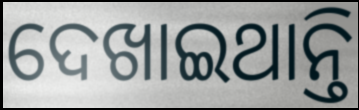
ଦେଖାଇଥାନ୍ତି